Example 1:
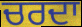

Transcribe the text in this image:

ਚਰਦਾ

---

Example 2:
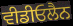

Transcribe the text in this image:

ਵੀਡੀਓਲੈਨ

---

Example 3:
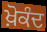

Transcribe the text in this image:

ਖ਼ੋਕੰਦ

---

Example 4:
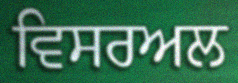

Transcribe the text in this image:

ਵਿਸਰਅਲ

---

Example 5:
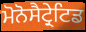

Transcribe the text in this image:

ਮੋਨੋਸੈਟ੍ਰੇਟਿਡ